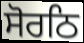
ਸੋਰਠਿ